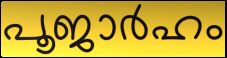
പൂജാർഹം